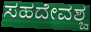
ಸಹದೇವಶ್ಚ